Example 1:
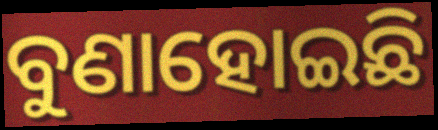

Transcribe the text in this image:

ବୁଣାହୋଇଛି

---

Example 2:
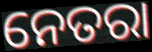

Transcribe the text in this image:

ନେତରା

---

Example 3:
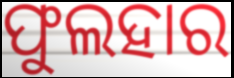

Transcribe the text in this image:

ଫୁଲହାର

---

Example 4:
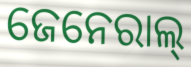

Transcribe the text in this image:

ଜେନେରାଲ୍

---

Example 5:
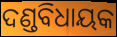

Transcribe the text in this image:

ଦଣ୍ଡବିଧାୟକ